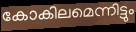
കോകിലമെന്നിട്ടും